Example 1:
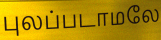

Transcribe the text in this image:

புலப்படாமலே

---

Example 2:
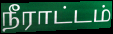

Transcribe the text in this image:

நீராட்டம்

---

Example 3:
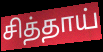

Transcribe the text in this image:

சித்தாய்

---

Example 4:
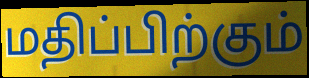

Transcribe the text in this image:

மதிப்பிற்கும்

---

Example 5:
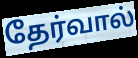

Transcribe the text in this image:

தேர்வால்